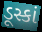
ડૂસ્કાં